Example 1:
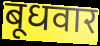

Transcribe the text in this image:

बूधवार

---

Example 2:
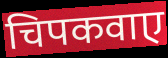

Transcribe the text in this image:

चिपकवाए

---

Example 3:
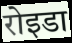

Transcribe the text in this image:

रोइडा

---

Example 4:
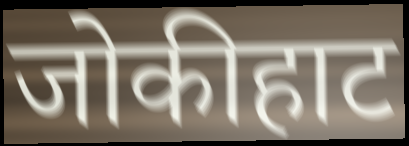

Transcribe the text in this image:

जोकीहाट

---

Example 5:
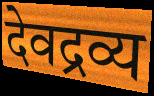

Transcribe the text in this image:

देवद्रव्य